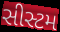
સીસ્ટમ